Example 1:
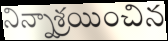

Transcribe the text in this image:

నిన్నాశ్రయించిన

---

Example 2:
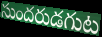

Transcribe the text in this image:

సుందరుడగుట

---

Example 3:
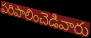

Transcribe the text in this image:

పరిపాలించెడివారు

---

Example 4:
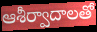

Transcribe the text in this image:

ఆశీర్వాదాలతో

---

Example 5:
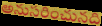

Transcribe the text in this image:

అనుసరించునది